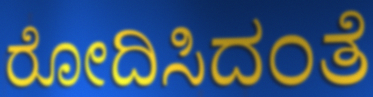
ರೋದಿಸಿದಂತೆ